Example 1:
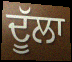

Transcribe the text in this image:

ਦੂੱਲਾ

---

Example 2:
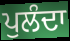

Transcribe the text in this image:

ਪੁਲੰਦਾ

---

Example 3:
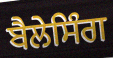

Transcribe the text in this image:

ਬੈਲੇਸਿੰਗ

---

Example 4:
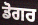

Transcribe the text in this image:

ਡੋਗਰ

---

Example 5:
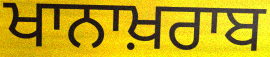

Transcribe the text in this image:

ਖਾਨਾਖ਼ਰਾਬ